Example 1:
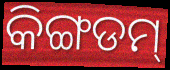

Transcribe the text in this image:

କିଙ୍ଗଡମ୍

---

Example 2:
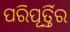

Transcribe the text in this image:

ପରିପୂର୍ତ୍ତିର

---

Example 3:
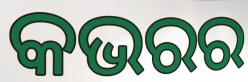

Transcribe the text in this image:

କଭରର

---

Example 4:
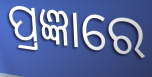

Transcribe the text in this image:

ପ୍ରଜ୍ଞାରେ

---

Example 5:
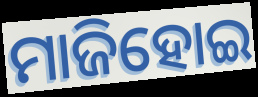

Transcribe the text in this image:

ମାଜିହୋଇ